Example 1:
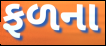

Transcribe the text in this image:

ફળના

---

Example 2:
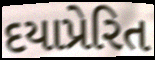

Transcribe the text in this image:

દયાપ્રેરિત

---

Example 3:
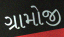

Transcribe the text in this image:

ગ્રામોજી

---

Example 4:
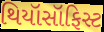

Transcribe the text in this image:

થિયૉસૉફિસ્ટ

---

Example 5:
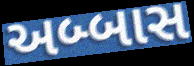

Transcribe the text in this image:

અબ્બાસ